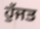
ਹੁੱਜਤ